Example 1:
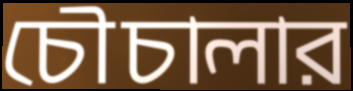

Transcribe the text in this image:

চৌচালার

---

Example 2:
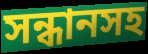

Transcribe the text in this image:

সন্ধানসহ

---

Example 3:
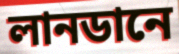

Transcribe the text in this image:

লানডানে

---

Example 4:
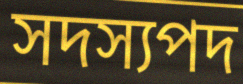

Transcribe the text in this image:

সদস্যপদ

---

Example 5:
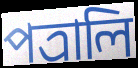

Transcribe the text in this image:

পত্রালি